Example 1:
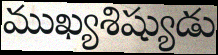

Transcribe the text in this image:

ముఖ్యశిష్యుడు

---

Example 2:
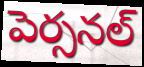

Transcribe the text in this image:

పెర్సనల్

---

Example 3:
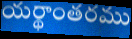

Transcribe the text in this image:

యర్థాంతరము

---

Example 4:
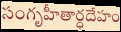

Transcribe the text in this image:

సంగృహీతార్ధదేహం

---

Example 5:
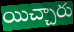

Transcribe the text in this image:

యిచ్చారు